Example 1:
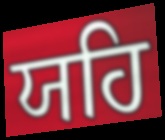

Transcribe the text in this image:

ਯਹਿ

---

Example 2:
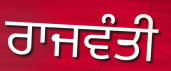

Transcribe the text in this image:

ਰਾਜਵੰਤੀ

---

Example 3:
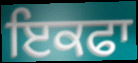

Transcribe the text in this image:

ਇਕਫਾ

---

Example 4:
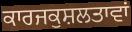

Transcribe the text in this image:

ਕਾਰਜਕੁਸ਼ਲਤਾਵਾਂ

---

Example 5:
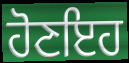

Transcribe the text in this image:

ਹੋਣਇਹ